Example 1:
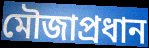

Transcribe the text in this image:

মৌজাপ্রধান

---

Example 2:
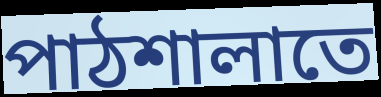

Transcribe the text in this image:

পাঠশালাতে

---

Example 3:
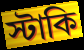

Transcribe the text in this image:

স্টাকি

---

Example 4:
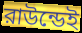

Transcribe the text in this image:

রাউন্ডেই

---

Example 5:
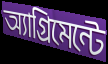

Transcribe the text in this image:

অ্যাগ্রিমেন্টে